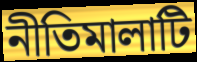
নীতিমালাটি